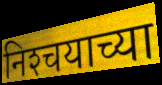
निश्चयाच्या